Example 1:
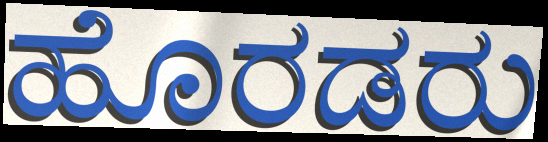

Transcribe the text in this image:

ಹೊರಡರು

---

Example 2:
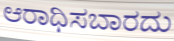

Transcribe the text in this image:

ಆರಾಧಿಸಬಾರದು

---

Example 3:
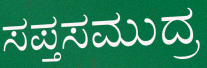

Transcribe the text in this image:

ಸಪ್ತಸಮುದ್ರ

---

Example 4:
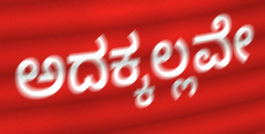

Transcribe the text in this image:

ಅದಕ್ಕಲ್ಲವೇ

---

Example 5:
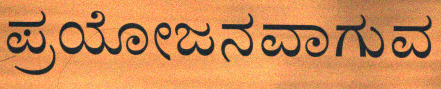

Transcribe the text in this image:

ಪ್ರಯೋಜನವಾಗುವ